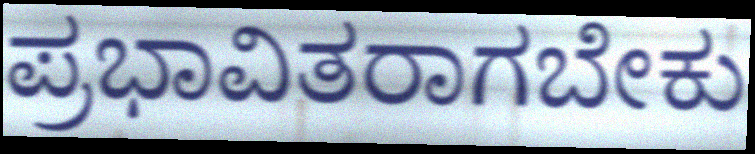
ಪ್ರಭಾವಿತರಾಗಬೇಕು